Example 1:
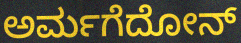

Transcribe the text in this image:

ಅರ್ಮಗೆದೋನ್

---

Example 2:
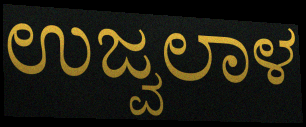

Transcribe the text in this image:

ಉಜ್ವಲಾಳ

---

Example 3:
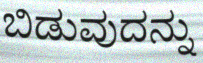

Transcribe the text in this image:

ಬಿಡುವುದನ್ನು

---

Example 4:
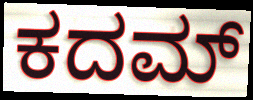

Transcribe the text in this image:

ಕದಮ್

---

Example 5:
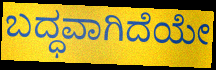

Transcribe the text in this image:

ಬದ್ಧವಾಗಿದೆಯೇ